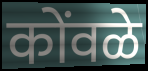
कोंवळे